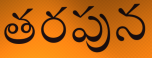
తరపున